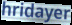
hridayer